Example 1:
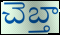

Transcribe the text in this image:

చెబ్తా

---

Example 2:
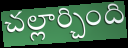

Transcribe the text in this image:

చల్లార్చింది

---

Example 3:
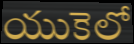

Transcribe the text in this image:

యుకెలో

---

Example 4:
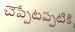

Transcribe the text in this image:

చెప్పేటప్పటికి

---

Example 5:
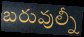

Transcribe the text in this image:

బరువుల్నీ